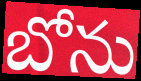
బోను